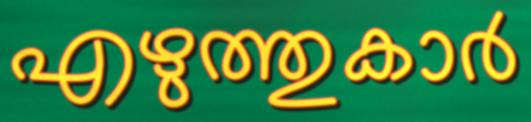
എഴുത്തുകാർ